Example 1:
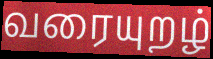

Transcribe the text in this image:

வரையுறழ்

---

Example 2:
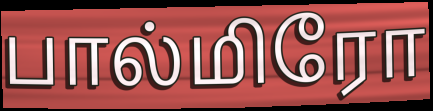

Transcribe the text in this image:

பால்மிரோ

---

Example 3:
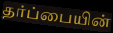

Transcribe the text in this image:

தர்ப்பையின்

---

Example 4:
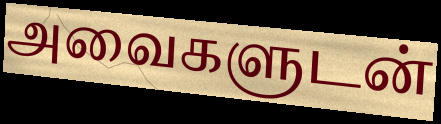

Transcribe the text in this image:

அவைகளுடன்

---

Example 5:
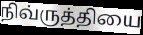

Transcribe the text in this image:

நிவ்ருத்தியை